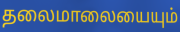
தலைமாலையையும்